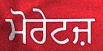
ਮੋਰੇਟਜ਼